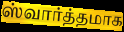
ஸ்வார்த்தமாக